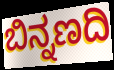
ಬಿನ್ನಣದಿ